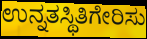
ಉನ್ನತಸ್ಥಿತಿಗೇರಿಸು